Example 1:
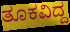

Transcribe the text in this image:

ತೂಕವಿದ್ದ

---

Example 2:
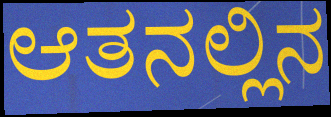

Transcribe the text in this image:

ಆತನಲ್ಲಿನ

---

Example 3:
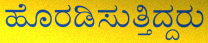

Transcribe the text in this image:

ಹೊರಡಿಸುತ್ತಿದ್ದರು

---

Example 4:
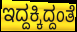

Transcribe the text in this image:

ಇದ್ದಕ್ಕಿದ್ದಂತೆ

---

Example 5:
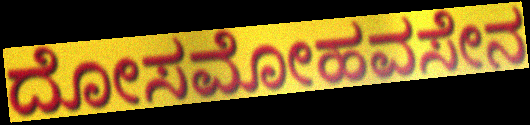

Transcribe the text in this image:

ದೋಸಮೋಹವಸೇನ